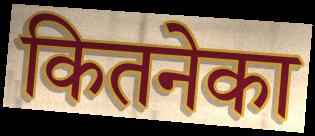
कितनेका